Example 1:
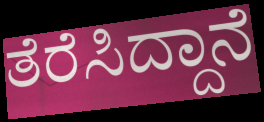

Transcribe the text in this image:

ತೆರೆಸಿದ್ದಾನೆ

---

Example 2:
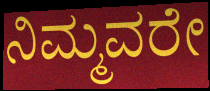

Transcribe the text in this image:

ನಿಮ್ಮವರೇ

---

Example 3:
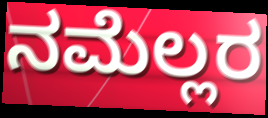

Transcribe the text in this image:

ನಮೆಲ್ಲರ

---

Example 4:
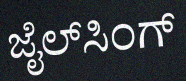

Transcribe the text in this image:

ಜೈಲ್‌ಸಿಂಗ್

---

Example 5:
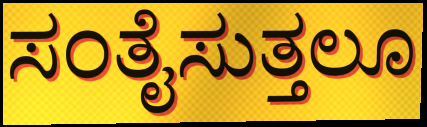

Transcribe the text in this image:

ಸಂತೈಸುತ್ತಲೂ